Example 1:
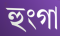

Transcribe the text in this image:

হুংগা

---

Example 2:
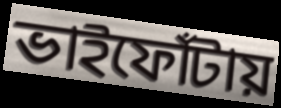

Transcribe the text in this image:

ভাইফোঁটায়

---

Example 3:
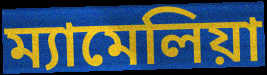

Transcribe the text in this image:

ম্যামেলিয়া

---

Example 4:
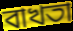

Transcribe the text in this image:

বাখতা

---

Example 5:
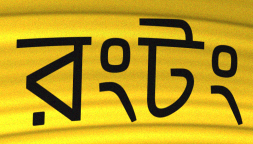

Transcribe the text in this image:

রংটং